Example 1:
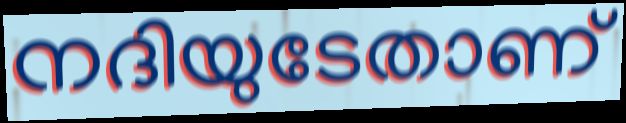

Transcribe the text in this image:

നദിയുടേതാണ്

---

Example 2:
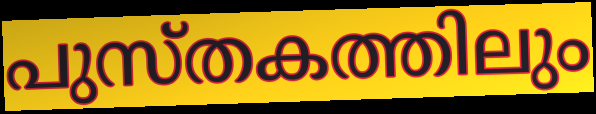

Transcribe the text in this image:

പുസ്തകത്തിലും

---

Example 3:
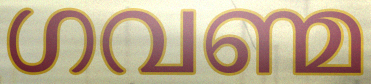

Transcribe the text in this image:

ഗവണ്മ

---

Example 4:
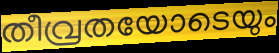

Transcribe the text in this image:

തീവ്രതയോടെയും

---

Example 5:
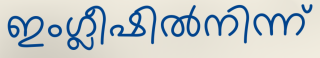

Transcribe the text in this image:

ഇംഗ്ലീഷിൽനിന്ന്